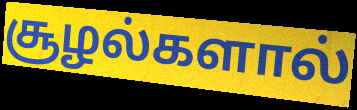
சூழல்களால்